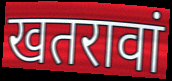
खतरावां